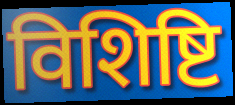
विशिष्टि